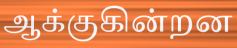
ஆக்குகின்றன